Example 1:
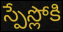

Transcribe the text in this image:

స్పేస్లోకి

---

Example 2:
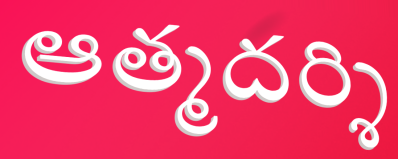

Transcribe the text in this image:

ఆత్మదర్శి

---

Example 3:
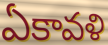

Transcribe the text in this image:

ఏకావళి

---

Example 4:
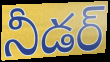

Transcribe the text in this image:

నీడర్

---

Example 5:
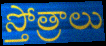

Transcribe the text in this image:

స్తోత్రాలు